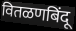
वितळणबिंदू